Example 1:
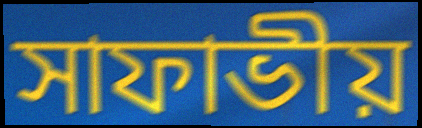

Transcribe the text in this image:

সাফাভীয়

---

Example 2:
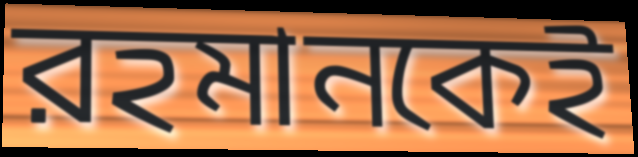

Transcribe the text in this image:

রহমানকেই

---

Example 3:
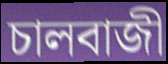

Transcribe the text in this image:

চালবাজী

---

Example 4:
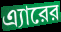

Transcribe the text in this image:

এ্যারের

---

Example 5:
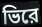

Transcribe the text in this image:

ভিরে